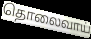
தொலைவாய்